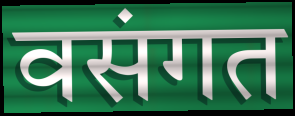
वसंगत